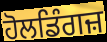
ਹੋਲਡਿੰਗਜ਼